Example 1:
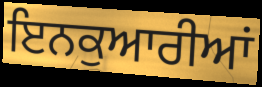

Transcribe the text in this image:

ਇਨਕੁਆਰੀਆਂ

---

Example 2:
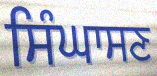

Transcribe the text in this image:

ਸਿੰਘਾਸਣ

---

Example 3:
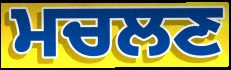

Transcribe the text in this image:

ਮਚਲਣ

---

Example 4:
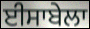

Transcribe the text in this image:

ਈਸਾਬੇਲਾ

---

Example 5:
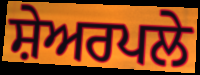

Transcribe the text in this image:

ਸ਼ੇਅਰਪਲੇ